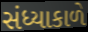
સંધ્યાકાળે